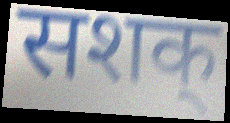
सशक्